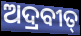
ଅଦ୍ରବୀତ୍